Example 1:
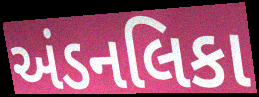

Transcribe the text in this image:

અંડનલિકા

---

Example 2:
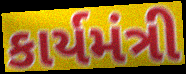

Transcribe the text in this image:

કાર્યમંત્રી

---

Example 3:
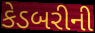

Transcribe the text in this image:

કેડબરીની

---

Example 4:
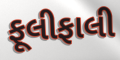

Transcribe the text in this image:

ફૂલીફાલી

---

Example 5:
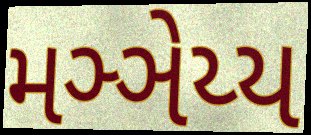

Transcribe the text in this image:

મઞ્ઞેય્ય